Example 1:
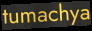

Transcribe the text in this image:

tumachya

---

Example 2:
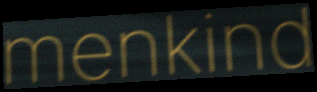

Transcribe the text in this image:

menkind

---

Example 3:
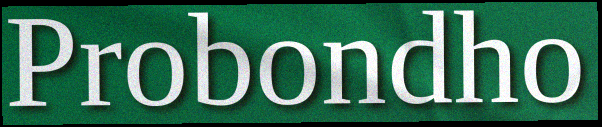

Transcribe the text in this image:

Probondho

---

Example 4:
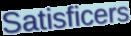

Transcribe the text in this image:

Satisficers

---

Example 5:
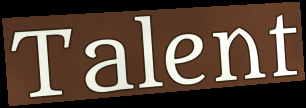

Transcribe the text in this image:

Talent